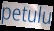
petulu